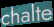
chalte